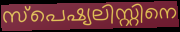
സ്പെഷ്യലിസ്റ്റിനെ